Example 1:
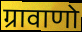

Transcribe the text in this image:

ग्रावाणो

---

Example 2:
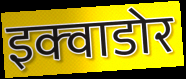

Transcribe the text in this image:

इक्‍वाडोर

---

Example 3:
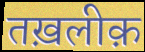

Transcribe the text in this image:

तख़लीक़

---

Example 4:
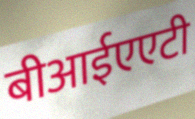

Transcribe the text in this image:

बीआईएएटी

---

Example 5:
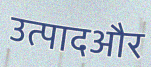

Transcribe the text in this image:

उत्पादऔर